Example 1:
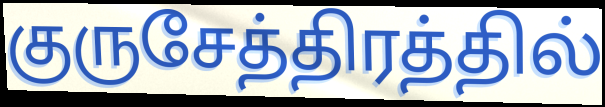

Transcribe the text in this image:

குருசேத்திரத்தில்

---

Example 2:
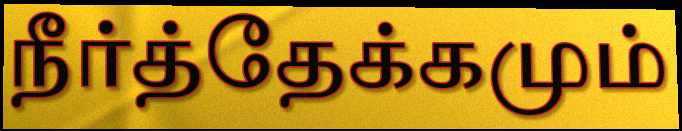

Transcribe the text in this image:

நீர்த்தேக்கமும்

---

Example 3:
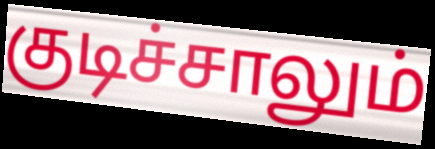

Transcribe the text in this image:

குடிச்சாலும்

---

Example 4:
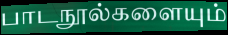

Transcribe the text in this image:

பாடநூல்களையும்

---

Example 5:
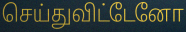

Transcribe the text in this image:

செய்துவிட்டேனோ